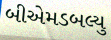
બીએમડબલ્યુ